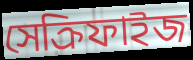
সেক্রিফাইজ